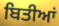
ਬਿਤੀਆਂ